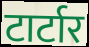
टार्टार